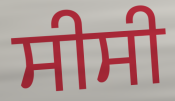
ਸੀਸੀ